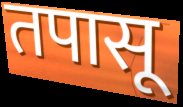
तपासू